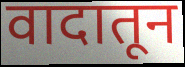
वादातून